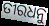
ତୀରଧନୁ